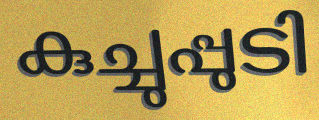
കുച്ചുപ്പുടി